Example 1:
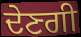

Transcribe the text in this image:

ਦੇਣਗੀ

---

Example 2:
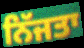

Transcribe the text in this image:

ਨਿੱਜਤਾ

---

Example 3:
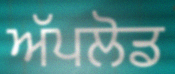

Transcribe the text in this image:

ਅੱਪਲੋਡ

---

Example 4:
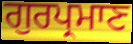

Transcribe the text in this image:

ਗੁਰਪ੍ਰਮਾਣ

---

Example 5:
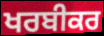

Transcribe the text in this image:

ਖਰਬੀਕਰ